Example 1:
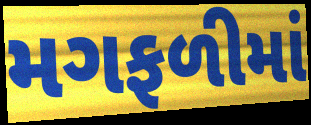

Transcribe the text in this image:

મગફળીમાં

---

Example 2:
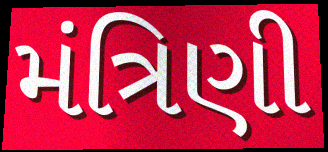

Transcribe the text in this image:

મંત્રિણી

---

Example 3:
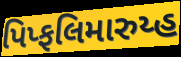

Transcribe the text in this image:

પિપ્ફલિમારુય્હ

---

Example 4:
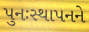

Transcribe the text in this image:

પુનઃસ્થાપનને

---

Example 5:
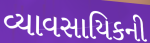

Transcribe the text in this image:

વ્યાવસાયિકની